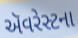
ઍૅવરેસ્ટના